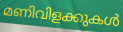
മണിവിളക്കുകൾ